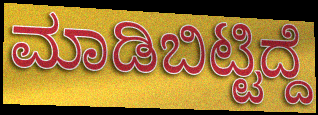
ಮಾಡಿಬಿಟ್ಟಿದ್ದೆ